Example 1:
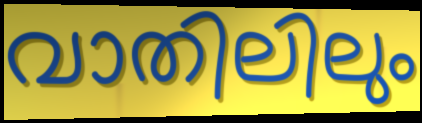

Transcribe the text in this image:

വാതിലിലും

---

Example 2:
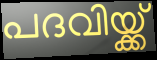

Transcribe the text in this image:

പദവിയ്ക്ക്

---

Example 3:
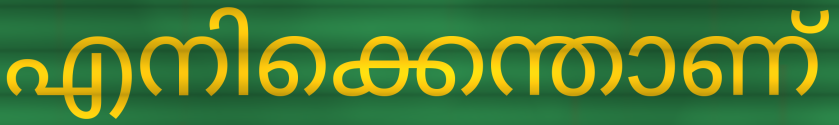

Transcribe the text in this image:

എനിക്കെന്താണ്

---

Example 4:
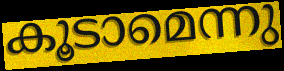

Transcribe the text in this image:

കൂടാമെന്നു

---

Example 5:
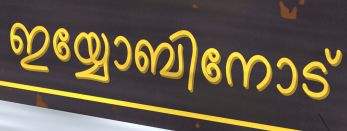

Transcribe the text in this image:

ഇയ്യോബിനോട്